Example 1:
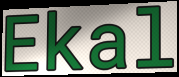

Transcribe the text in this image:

Ekal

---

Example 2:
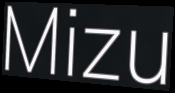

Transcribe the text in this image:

Mizu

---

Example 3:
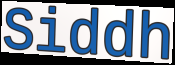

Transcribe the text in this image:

Siddh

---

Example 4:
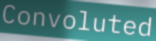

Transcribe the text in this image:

Convoluted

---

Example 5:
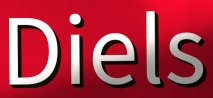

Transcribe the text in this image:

Diels